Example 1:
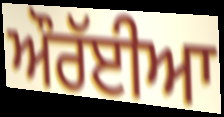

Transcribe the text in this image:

ਔਰੱਈਆ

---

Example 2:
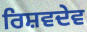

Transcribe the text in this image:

ਰਿਸ਼ਵਦੇਵ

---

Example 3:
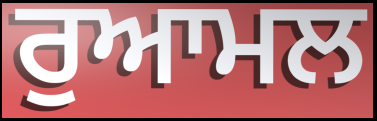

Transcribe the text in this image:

ਰੁਆਮਲ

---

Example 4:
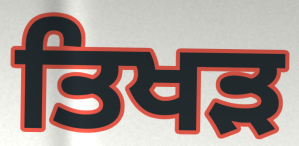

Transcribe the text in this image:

ਤਿਖੜ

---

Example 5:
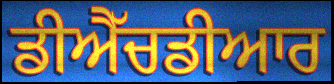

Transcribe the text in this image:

ਡੀਐੱਚਡੀਆਰ